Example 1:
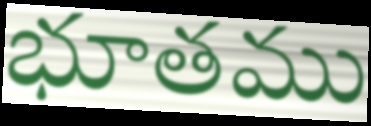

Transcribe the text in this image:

భూతము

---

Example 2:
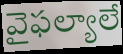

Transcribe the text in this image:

వైఫల్యాలే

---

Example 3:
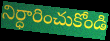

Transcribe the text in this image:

నిర్ధారించుకోండి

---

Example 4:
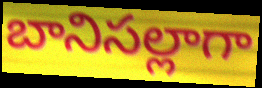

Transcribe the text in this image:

బానిసల్లాగా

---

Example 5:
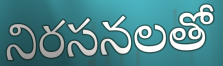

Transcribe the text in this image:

నిరసనలతో